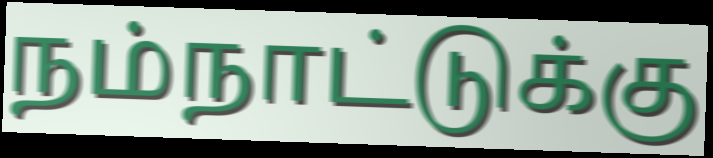
நம்நாட்டுக்கு